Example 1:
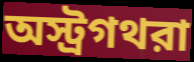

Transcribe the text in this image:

অস্ট্রগথরা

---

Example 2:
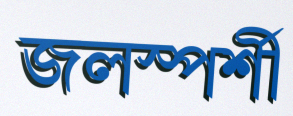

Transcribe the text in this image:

জলস্পর্শী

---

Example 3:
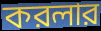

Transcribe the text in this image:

করলার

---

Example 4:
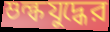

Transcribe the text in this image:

শুল্কযুদ্ধের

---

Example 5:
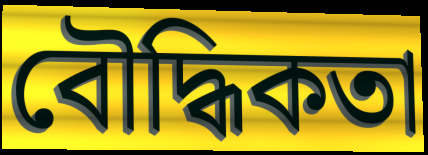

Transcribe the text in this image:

বৌদ্ধিকতা